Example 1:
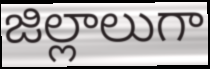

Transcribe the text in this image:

జిల్లాలుగా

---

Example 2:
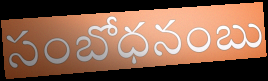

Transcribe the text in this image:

సంబోధనంబు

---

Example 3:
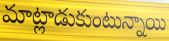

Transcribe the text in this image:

మాట్లాడుకుంటున్నాయి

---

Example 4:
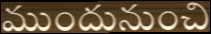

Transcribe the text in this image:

ముందునుంచి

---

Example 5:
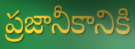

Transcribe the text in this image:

ప్రజానీకానికి